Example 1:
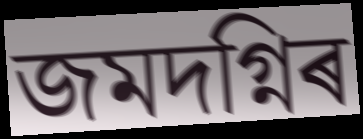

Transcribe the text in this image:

জমদগ্নিৰ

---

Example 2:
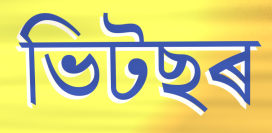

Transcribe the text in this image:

ভিটছৰ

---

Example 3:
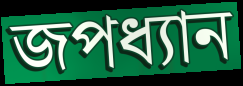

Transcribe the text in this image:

জপধ্যান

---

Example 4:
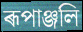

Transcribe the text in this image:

ৰূপাঞ্জলি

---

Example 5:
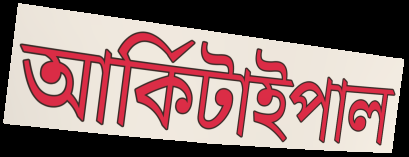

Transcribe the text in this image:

আৰ্কিটাইপাল